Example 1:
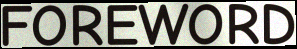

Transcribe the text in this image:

FOREWORD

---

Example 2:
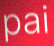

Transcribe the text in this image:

pai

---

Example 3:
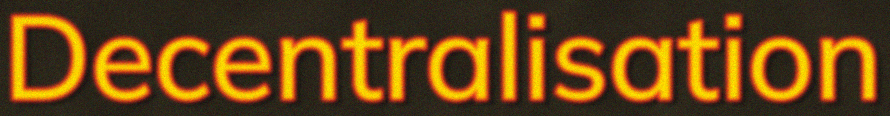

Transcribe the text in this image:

Decentralisation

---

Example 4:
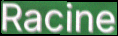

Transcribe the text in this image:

Racine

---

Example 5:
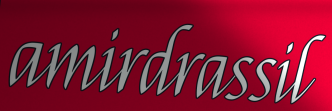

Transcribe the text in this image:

amirdrassil